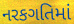
નરકગતિમાં